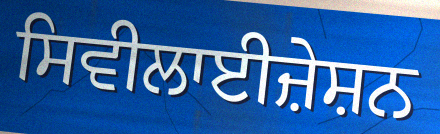
ਸਿਵੀਲਾਈਜ਼ੇਸ਼ਨ